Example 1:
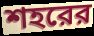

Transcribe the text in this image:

শহরের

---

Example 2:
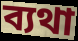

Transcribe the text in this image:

ব্যথা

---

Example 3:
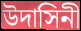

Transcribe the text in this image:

উদাসিনী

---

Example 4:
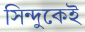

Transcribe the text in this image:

সিন্দুকেই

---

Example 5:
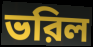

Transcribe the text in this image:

ভরিল